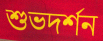
শুভদর্শন